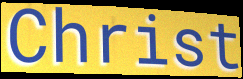
Christ